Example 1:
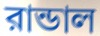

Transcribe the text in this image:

রান্ডাল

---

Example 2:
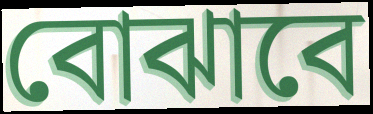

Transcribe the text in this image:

বোঝাবে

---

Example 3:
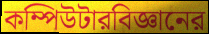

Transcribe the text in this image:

কম্পিউটারবিজ্ঞানের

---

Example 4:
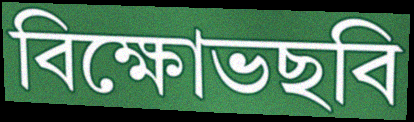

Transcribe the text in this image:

বিক্ষোভছবি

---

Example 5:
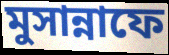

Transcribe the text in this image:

মুসান্নাফে